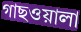
গাছওয়ালা